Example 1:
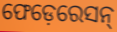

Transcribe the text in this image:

ଫେଡ଼େରେସନ୍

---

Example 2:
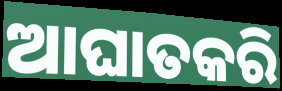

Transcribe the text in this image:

ଆଘାତକରି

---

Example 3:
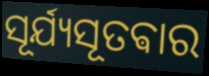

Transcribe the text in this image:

ସୂର୍ଯ୍ଯସୂତଵାର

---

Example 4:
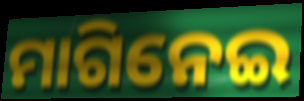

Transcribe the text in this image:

ମାଗିନେଇ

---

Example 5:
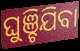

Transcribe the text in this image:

ଘୁଞ୍ଚିଯିବା